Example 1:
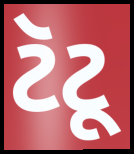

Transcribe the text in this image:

ટૅટૂ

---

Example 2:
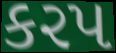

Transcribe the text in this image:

કરપ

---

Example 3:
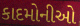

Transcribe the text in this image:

કાદમોનીઓ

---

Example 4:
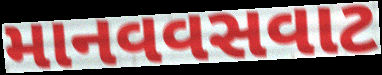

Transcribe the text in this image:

માનવવસવાટ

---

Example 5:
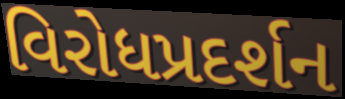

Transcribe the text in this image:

વિરોધપ્રદર્શન